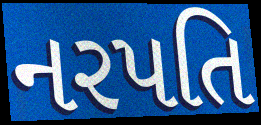
નરપતિ